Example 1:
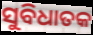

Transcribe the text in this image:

ସୁବିଧାତକ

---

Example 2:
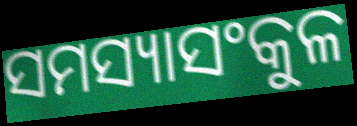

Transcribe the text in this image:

ସମସ୍ୟାସଂକୁଳ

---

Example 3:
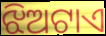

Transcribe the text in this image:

ଝିଅଟାଏ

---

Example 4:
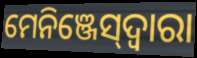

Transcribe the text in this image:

ମେନିଞ୍ଜେସ୍‌ଦ୍ୱାରା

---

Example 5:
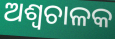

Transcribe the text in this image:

ଅଶ୍ୱଚାଳକ